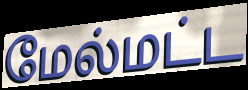
மேல்மட்ட